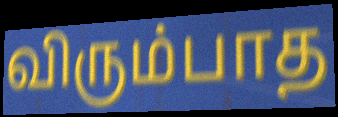
விரும்பாத